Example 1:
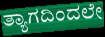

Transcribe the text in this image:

ತ್ಯಾಗದಿಂದಲೇ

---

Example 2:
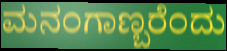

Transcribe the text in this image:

ಮನಂಗಾಣ್ಬರೆಂದು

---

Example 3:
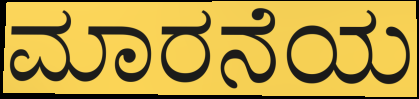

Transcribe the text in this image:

ಮಾರನೆಯ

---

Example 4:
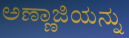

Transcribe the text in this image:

ಅಣ್ಣಾಜಿಯನ್ನು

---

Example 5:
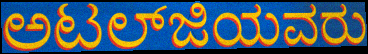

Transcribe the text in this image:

ಅಟಲ್‍ಜಿಯವರು